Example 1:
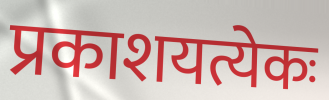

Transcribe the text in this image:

प्रकाशयत्येकः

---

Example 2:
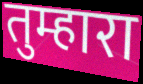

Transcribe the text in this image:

तुम्‍हारा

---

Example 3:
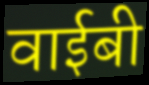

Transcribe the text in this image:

वाईबी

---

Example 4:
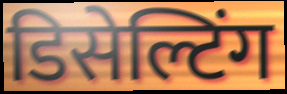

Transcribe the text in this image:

डिसेल्टिंग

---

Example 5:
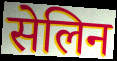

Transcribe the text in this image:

सेलिन